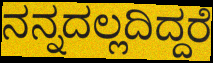
ನನ್ನದಲ್ಲದಿದ್ದರೆ